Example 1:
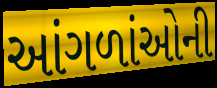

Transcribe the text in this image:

આંગળાંઓની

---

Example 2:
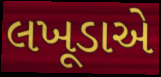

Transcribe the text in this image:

લખૂડાએ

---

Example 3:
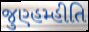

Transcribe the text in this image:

જુણ્હમ્હીતિ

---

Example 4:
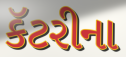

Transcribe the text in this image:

કૅટરીના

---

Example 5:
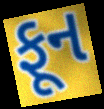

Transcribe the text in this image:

ફૂન